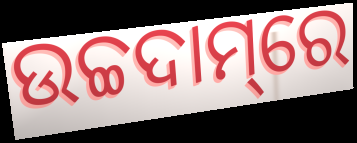
ଉଚ୍ଚଦାମ୍‌ରେ